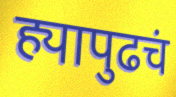
ह्यापुढचं